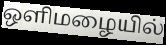
ஒளிமழையில்